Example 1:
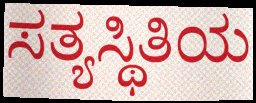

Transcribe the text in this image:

ಸತ್ಯಸ್ಥಿತಿಯ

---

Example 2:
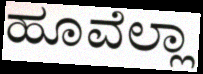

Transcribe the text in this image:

ಹೂವೆಲ್ಲಾ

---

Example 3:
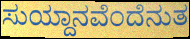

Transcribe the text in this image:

ಸುಯ್ದಾನವೆಂದೆನುತ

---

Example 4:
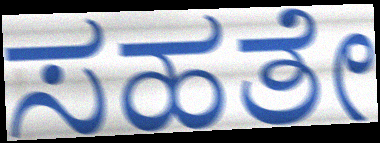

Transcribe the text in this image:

ಸಹತೇ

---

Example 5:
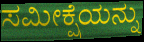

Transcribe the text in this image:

ಸಮೀಕ್ಷೆಯನ್ನು